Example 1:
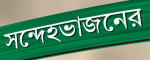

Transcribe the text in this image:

সন্দেহভাজনের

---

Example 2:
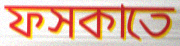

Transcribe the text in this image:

ফসকাতে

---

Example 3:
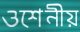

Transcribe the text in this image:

ওশেনীয়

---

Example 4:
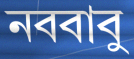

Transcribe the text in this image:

নববাবু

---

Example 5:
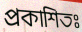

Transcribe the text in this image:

প্রকাশিতঃ